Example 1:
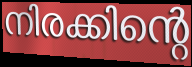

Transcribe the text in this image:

നിരക്കിന്റെ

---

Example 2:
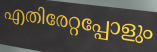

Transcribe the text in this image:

എതിരേറ്റപ്പോളും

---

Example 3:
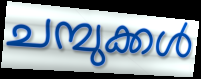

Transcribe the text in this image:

ചമ്പുക്കൾ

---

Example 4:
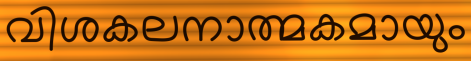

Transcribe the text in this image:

വിശകലനാത്മകമായും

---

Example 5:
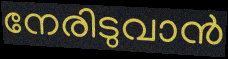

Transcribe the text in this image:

നേരിടുവാൻ